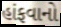
હાંફવાનો